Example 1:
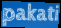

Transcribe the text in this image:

pakati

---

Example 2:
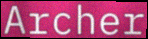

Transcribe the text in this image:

Archer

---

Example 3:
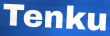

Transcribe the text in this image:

Tenku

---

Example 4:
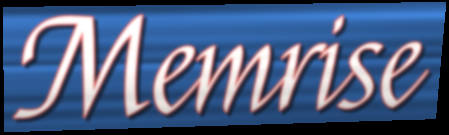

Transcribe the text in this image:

Memrise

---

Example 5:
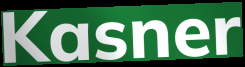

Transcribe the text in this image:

Kasner